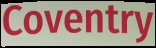
Coventry